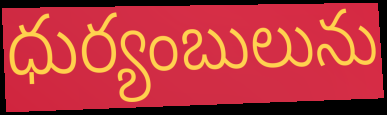
ధుర్యంబులును